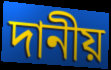
দানীয়